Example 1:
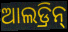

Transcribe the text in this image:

ଆଲଡ୍ରିନ୍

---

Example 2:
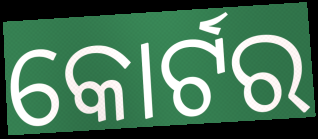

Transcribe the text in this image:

କୋର୍ଟର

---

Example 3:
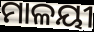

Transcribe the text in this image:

ମାଳୟୀ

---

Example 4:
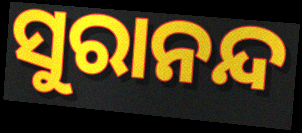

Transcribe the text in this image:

ସୁରାନନ୍ଦ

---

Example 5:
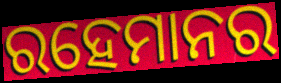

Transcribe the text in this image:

ରହେମାନର